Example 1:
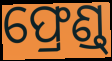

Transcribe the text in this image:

ଫ୍ରେଣ୍ଡ୍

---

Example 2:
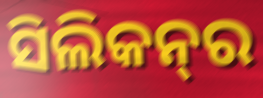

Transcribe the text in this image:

ସିଲିକନ୍‌ର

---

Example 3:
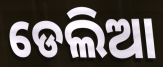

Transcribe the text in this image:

ଡେଲିଆ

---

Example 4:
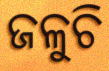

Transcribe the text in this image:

ଜଳୁଚି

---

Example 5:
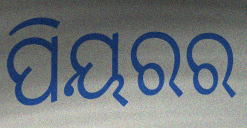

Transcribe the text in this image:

ପିୟରର